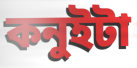
কনুইটা